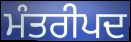
ਮੰਤਰੀਪਦ